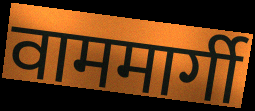
वाममार्गी